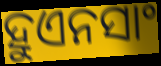
ହୁଏନସାଂ